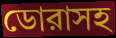
ডোরাসহ